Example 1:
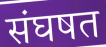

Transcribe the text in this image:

संघषत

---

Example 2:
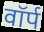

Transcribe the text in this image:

वॉर्प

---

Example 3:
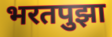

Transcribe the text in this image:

भरतपुझा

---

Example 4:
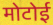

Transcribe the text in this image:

मोटोई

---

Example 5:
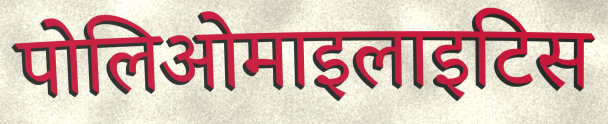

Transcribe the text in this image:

पोलिओमाइलाइटिस